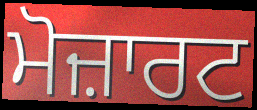
ਮੋਜ਼ਾਰਟ